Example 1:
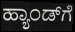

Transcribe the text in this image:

ಹ್ಯಾಂಡ್‌ಗೆ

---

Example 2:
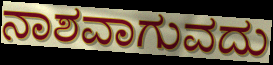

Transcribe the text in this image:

ನಾಶವಾಗುವದು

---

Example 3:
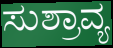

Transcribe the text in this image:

ಸುಶ್ರಾವ್ಯ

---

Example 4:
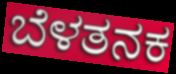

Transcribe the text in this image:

ಬೆಳತನಕ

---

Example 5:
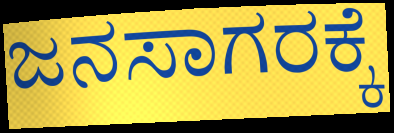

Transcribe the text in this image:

ಜನಸಾಗರಕ್ಕೆ